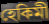
হেকিমী